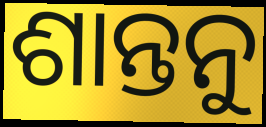
ଶାନ୍ତନୁ